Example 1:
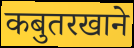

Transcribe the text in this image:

कबुतरखाने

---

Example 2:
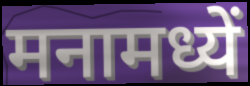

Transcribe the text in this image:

मनामध्यें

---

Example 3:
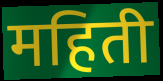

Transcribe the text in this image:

महिती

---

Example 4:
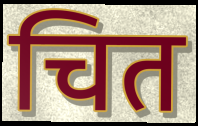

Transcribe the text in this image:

चित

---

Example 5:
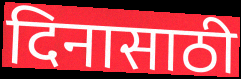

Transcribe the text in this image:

दिनासाठी